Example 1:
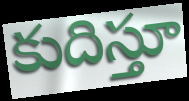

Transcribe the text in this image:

కుదిస్తూ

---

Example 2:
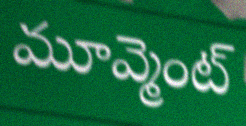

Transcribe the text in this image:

మూవ్మెంట్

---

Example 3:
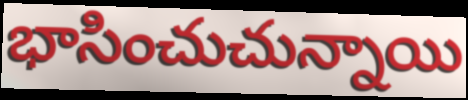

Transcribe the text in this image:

భాసించుచున్నాయి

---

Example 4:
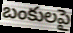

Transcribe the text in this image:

బంకులపై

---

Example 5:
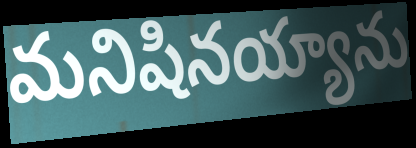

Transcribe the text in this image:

మనిషినయ్యాను